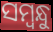
ସମ୍ବନ୍ଧୁ